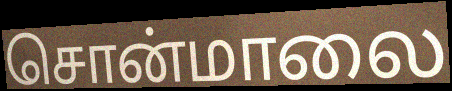
சொன்மாலை